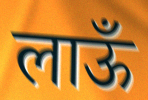
लाऊँ